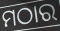
ମଠାର